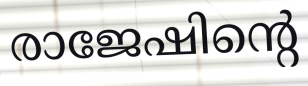
രാജേഷിന്റെ